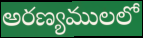
అరణ్యములలో